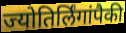
ज्योतिर्लिंगांपैकी